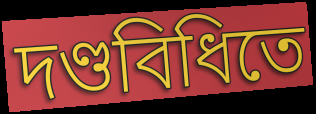
দণ্ডবিধিতে